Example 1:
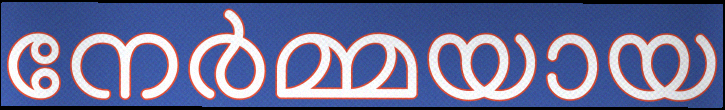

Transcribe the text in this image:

നേർമ്മയായ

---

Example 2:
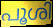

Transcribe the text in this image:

പൂശി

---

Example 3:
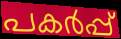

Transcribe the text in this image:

പകർപ്പ്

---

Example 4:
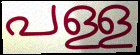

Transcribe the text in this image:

പള്ള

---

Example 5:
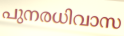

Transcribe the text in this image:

പുനരധിവാസ